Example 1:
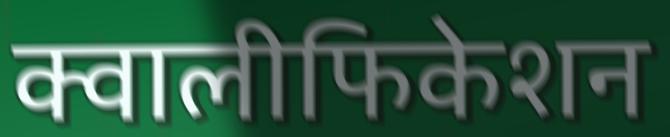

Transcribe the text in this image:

क्वालीफिकेशन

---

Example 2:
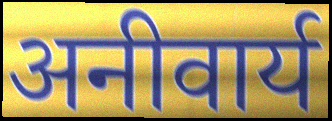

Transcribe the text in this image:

अनीवार्य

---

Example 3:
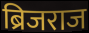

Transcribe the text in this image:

ब्रिजराज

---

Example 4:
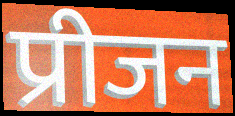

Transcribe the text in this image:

प्रीजन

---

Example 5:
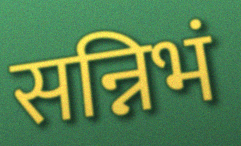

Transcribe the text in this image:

सन्निभं